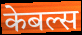
केबल्स